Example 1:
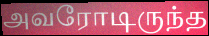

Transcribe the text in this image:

அவரோடிருந்த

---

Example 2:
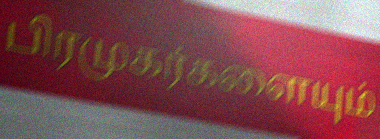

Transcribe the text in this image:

பிரமுகர்களையும்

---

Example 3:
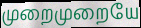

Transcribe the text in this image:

முறைமுறையே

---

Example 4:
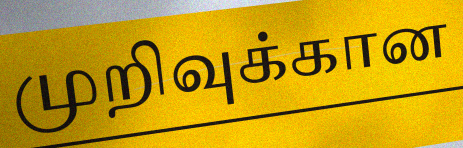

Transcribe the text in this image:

முறிவுக்கான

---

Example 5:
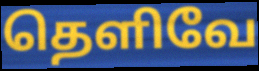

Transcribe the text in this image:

தெளிவே